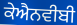
ਕੇਐਨਵੀਬੀ